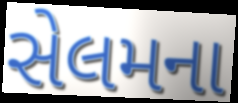
સેલમના